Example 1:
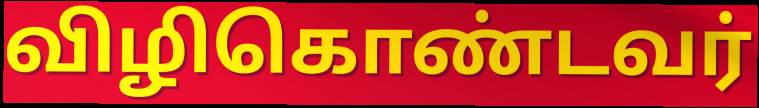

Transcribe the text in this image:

விழிகொண்டவர்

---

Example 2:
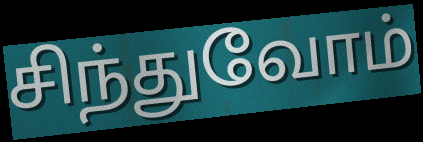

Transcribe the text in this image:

சிந்துவோம்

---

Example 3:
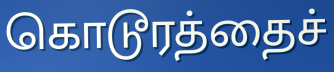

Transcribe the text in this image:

கொடூரத்தைச்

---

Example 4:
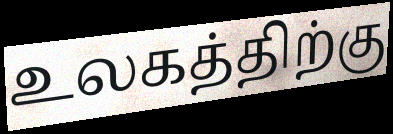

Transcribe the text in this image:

உலகத்திற்கு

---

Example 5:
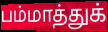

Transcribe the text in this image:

பம்மாத்துக்